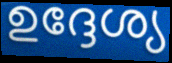
ഉദ്ദേശ്യ